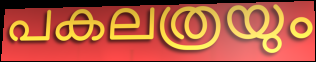
പകലത്രയും